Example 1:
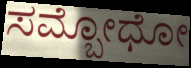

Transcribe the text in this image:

ಸಮ್ಬೋಧೋ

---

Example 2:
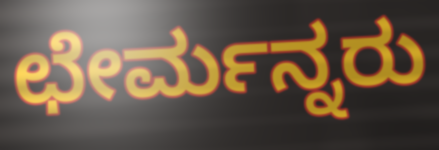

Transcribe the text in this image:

ಛೇರ್ಮನ್ನರು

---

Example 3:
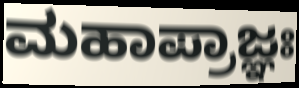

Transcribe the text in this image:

ಮಹಾಪ್ರಾಜ್ಞಃ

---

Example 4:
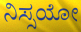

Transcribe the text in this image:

ನಿಸ್ಸಯೋ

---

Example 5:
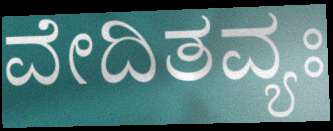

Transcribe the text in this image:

ವೇದಿತವ್ಯಃ